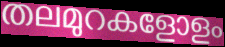
തലമുറകളോളം